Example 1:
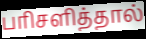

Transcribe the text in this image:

பரிசளித்தால்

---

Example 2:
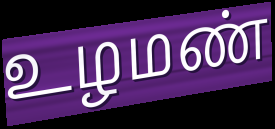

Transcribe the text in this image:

உழமண்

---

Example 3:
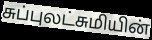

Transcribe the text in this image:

சுப்புலட்சுமியின்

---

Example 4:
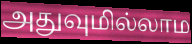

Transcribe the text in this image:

அதுவுமில்லாம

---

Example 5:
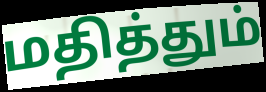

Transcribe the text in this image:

மதித்தும்